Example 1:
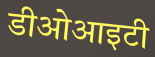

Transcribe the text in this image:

डीओआइटी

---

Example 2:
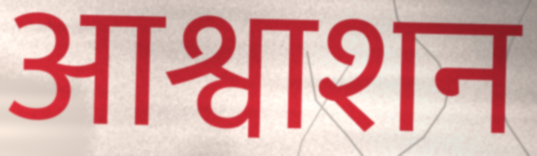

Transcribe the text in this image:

आश्वाशन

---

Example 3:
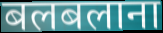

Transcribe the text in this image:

बलबलाना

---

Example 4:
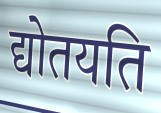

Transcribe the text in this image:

द्योतयति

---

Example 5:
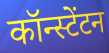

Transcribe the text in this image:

कॉन्स्टेंटन